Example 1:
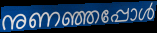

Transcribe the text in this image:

നുണഞ്ഞപ്പോൾ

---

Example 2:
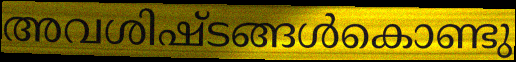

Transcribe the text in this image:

അവശിഷ്ടങ്ങൾകൊണ്ടു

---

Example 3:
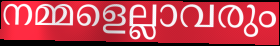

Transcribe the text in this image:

നമ്മളെല്ലാവരും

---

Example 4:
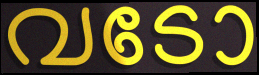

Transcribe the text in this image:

വടോ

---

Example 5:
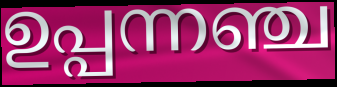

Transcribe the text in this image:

ഉപ്പന്നഞ്ച